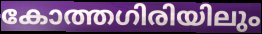
കോത്തഗിരിയിലും